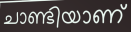
ചാണ്ടിയാണ്